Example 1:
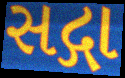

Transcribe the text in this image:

સદ્ગા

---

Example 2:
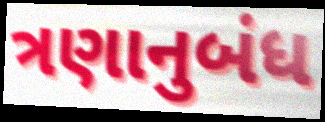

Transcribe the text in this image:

ત્રણાનુબંધ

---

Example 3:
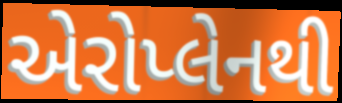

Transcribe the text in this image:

એરોપ્લેનથી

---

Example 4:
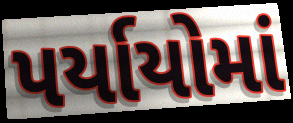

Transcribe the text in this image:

પર્યાયોમાં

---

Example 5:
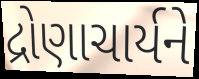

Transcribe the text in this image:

દ્રોણાચાર્યને